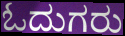
ಓದುಗರು